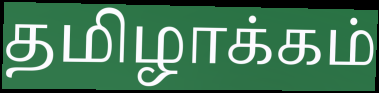
தமிழாக்கம்